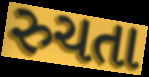
રુચતા